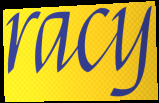
racy